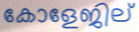
കോളേജില്